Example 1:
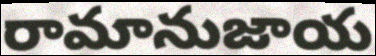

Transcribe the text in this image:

రామానుజాయ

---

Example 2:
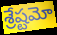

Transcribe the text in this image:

శ్రేష్టమో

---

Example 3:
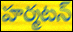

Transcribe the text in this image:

హర్మటన్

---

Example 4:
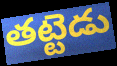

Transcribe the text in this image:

తట్టెడు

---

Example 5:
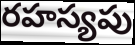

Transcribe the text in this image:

రహస్యపు